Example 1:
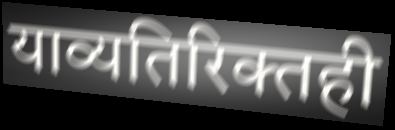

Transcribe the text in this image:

याव्यतिरिक्तही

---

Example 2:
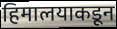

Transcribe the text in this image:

हिमालयाकडून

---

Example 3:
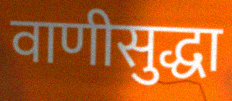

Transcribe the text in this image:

वाणीसुद्धा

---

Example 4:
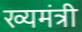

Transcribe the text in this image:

ख्यमंत्री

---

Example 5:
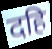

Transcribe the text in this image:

दहि